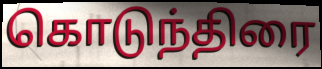
கொடுந்திரை